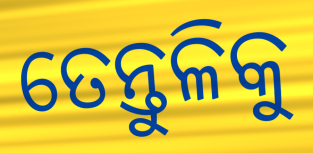
ତେନ୍ତୁଳିକୁ